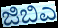
ಜಿಬಿಎ